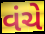
વંચે